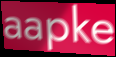
aapke